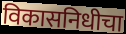
विकासनिधीचा